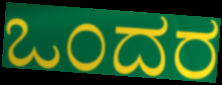
ಒಂದರ